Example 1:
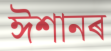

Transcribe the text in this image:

ঈশানৰ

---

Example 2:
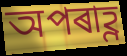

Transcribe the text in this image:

অপৰাহ্ণ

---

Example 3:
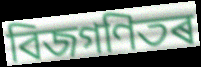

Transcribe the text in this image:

বিজগণিতৰ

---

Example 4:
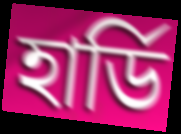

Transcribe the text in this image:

হাৰ্ডি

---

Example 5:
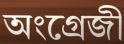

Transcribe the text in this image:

অংগ্ৰেজী